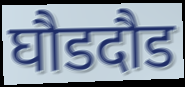
घौडदौड